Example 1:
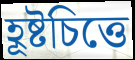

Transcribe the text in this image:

হূষ্টচিত্তে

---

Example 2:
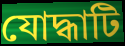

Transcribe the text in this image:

যোদ্ধাটি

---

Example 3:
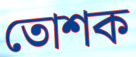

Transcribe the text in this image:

তোশক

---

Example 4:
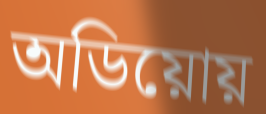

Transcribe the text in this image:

অডিয়োয়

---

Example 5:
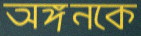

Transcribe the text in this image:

অঙ্গনকে